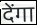
देंगा